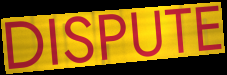
DISPUTE